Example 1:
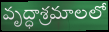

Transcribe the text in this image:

వృద్ధాశ్రమాలలో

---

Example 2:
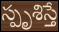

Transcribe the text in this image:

స్పృశిస్తే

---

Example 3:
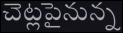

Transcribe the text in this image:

చెట్లపైనున్న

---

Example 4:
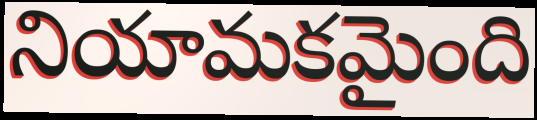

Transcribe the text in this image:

నియామకమైంది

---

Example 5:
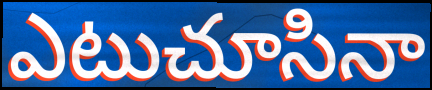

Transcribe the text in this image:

ఎటుచూసినా